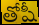
తోషీ